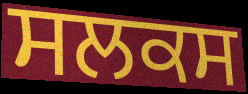
ਸਲਕਸ